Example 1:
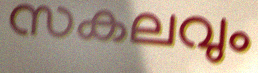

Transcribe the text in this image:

സകലവും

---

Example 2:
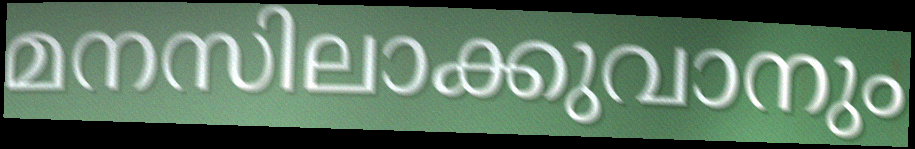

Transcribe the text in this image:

മനസിലാക്കുവാനും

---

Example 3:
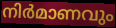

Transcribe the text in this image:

നിർമാണവും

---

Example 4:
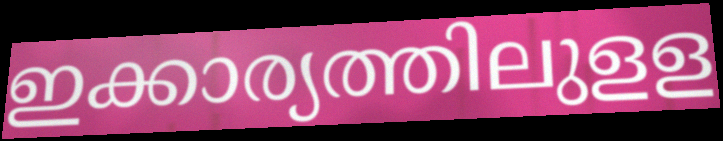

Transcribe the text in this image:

ഇക്കാര്യത്തിലുളള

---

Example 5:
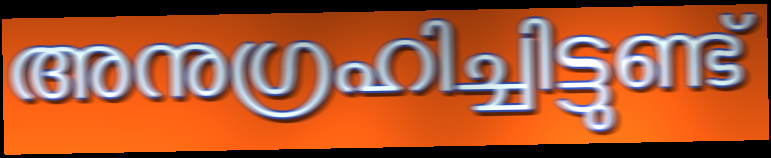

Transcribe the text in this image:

അനുഗ്രഹിച്ചിട്ടുണ്ട്